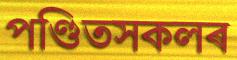
পণ্ডিতসকলৰ